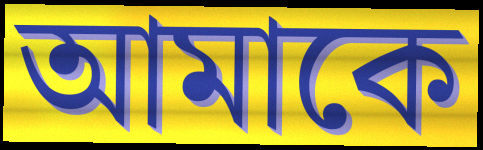
আমাকে